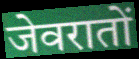
जेवरातों